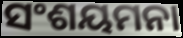
ସଂଶୟମନା